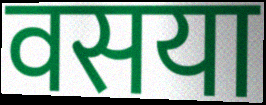
वसया